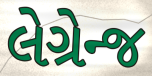
લેગ્રેન્જ